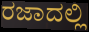
ರಜಾದಲ್ಲಿ